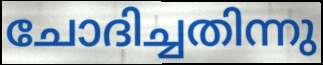
ചോദിച്ചതിന്നു